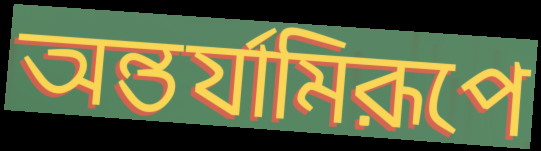
অন্তর্যামিরূপে